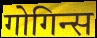
गोगिन्स